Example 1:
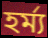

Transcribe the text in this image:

হর্ম্য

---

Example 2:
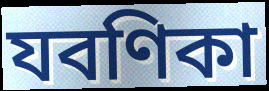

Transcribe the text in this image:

যবণিকা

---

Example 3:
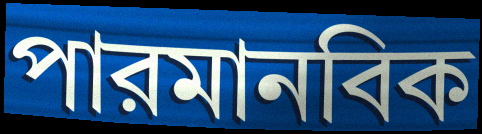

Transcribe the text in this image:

পারমানবিক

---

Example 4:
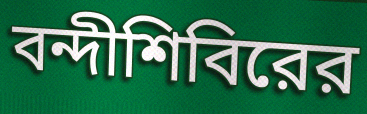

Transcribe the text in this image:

বন্দীশিবিরের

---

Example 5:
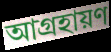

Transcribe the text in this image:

আগ্রহায়ণ